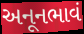
અનૂનભાવં